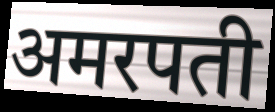
अमरपती